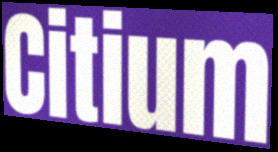
Citium